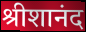
श्रीशानंद